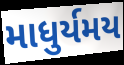
માધુર્યમય